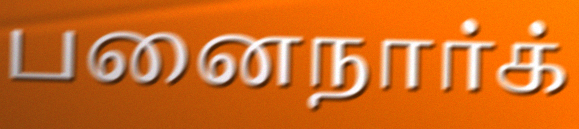
பனைநார்க்